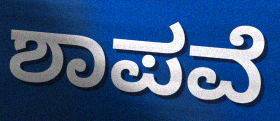
ಶಾಪವೆ